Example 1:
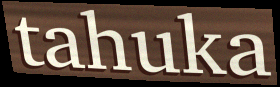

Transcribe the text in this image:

tahuka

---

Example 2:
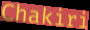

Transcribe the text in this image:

Chakiri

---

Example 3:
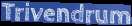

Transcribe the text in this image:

Trivendrum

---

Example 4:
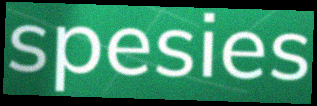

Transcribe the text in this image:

spesies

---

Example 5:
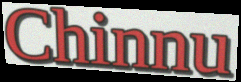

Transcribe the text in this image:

Chinnu